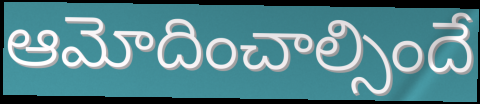
ఆమోదించాల్సిందే